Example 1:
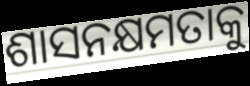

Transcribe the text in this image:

ଶାସନକ୍ଷମତାକୁ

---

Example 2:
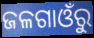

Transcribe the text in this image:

ଜଳଗାଓଁରୁ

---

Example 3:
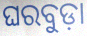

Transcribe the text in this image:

ଘରବୁଡ଼ା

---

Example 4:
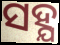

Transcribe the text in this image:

ସହ୍ଯ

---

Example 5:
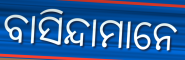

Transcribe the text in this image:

ବାସିନ୍ଦାମାନେ